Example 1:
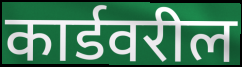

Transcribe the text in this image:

कार्डवरील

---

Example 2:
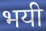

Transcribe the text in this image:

भयी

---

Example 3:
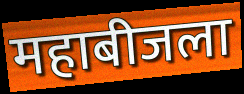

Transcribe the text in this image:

महाबीजला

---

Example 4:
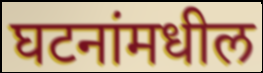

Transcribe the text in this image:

घटनांमधील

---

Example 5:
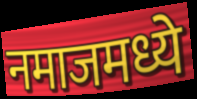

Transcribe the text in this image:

नमाजमध्ये